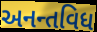
અનન્તવિધ